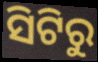
ସିଟିରୁ